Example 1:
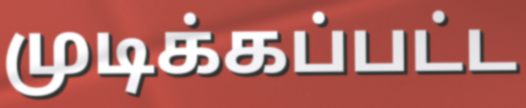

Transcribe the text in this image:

முடிக்கப்பட்ட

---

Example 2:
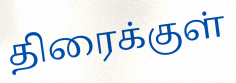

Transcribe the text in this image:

திரைக்குள்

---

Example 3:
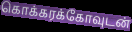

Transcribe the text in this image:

கொக்கரக்கோவுடன்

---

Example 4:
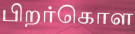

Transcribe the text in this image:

பிறர்கொள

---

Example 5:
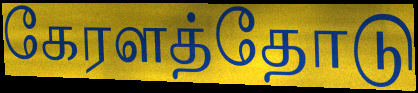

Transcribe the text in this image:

கேரளத்தோடு